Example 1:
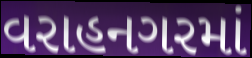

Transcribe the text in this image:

વરાહનગરમાં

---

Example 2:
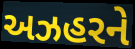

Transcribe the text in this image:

અઝહરને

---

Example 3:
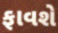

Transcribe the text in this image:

ફાવશે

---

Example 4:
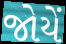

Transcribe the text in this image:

જોયેં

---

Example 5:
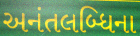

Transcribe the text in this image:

અનંતલબ્ધિના